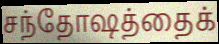
சந்தோஷத்தைக்